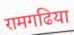
रामगढिया